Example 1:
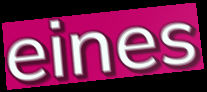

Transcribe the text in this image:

eines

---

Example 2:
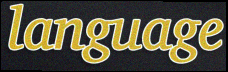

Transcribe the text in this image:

language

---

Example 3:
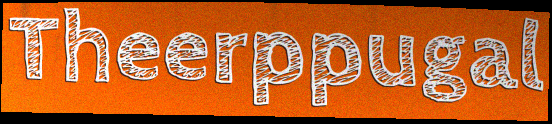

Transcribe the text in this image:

Theerppugal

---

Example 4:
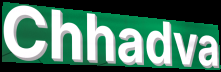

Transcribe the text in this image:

Chhadva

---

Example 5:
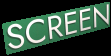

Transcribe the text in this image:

SCREEN